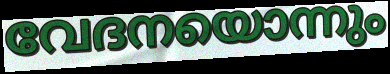
വേദനയൊന്നും